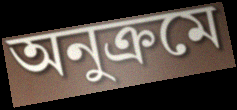
অনুক্ৰমে